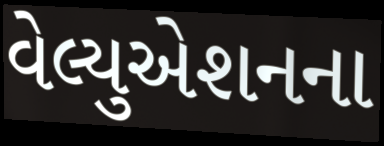
વેલ્યુએશનના